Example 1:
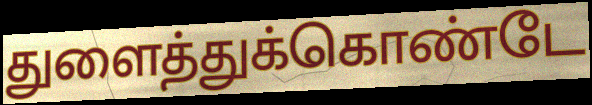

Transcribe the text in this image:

துளைத்துக்கொண்டே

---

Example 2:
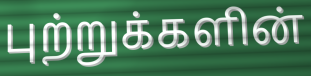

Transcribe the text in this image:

புற்றுக்களின்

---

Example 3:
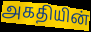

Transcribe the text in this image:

அகதியின்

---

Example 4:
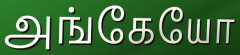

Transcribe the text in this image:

அங்கேயோ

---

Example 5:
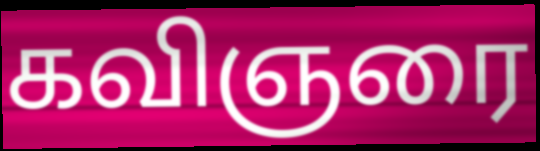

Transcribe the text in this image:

கவிஞரை